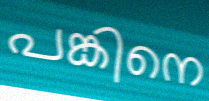
പങ്കിനെ